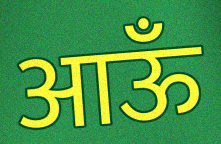
आऊँ